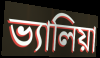
ভ্যালিয়া